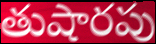
తుషారపు